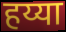
हय्या